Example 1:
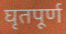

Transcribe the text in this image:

घृतपूर्ण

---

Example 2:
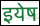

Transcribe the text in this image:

इयेष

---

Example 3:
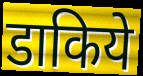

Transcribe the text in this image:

डाकिये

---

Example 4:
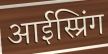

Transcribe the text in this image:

आईस्प्रिंग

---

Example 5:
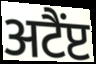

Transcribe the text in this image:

अटैंप्ट